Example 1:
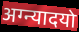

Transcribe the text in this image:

अग्न्यादयो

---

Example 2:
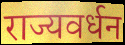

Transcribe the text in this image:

राज्यवर्धन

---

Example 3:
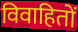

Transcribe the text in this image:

विवाहितों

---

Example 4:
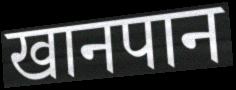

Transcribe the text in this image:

खानपान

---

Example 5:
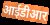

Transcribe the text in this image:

आईडीआर